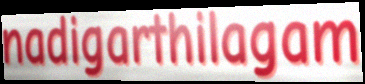
nadigarthilagam